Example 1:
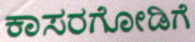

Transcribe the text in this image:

ಕಾಸರಗೋಡಿಗೆ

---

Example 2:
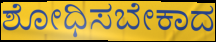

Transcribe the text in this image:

ಶೋಧಿಸಬೇಕಾದ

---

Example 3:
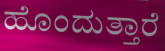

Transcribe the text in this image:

ಹೊಂದುತ್ತಾರೆ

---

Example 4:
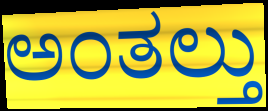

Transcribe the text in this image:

ಅಂತಲ್ತು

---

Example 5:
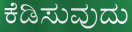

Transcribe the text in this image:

ಕೆಡಿಸುವುದು